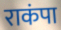
राकंपा